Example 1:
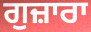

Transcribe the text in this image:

ਗੁਜ਼ਾਰਾ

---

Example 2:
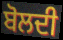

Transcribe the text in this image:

ਬੋਲਦੀ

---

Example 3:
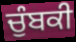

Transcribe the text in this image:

ਚੁੰਬਕੀ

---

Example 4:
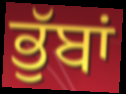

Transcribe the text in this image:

ਭੁੱਬਾਂ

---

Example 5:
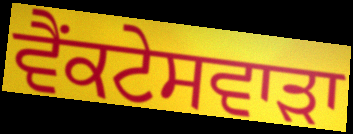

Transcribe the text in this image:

ਵੈਂਕਟੇਸਵਾੜਾ